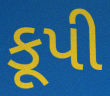
કૂપી